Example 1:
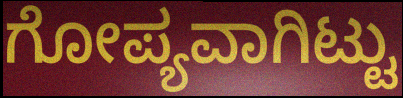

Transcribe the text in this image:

ಗೋಪ್ಯವಾಗಿಟ್ಟು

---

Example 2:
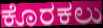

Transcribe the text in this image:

ಕೊರಕಲು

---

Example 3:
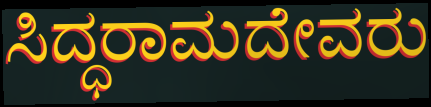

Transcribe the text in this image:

ಸಿದ್ಧರಾಮದೇವರು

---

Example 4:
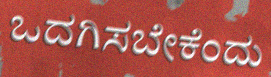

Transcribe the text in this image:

ಒದಗಿಸಬೇಕೆಂದು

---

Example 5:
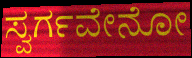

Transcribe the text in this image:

ಸ್ವರ್ಗವೇನೋ